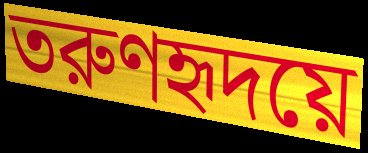
তরুণহৃদয়ে